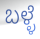
ಬಳ್ಳೆ